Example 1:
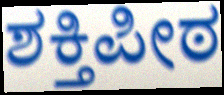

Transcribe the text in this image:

ಶಕ್ತಿಪೀಠ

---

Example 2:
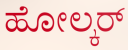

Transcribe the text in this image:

ಹೋಲ್ಕರ್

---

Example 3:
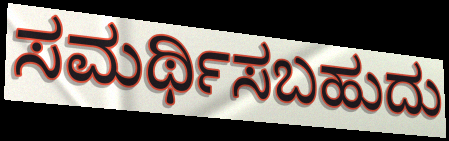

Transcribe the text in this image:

ಸಮರ್ಥಿಸಬಹುದು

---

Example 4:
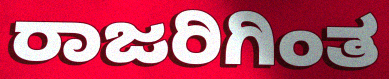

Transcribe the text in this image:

ರಾಜರಿಗಿಂತ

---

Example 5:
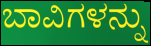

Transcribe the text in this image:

ಬಾವಿಗಳನ್ನು